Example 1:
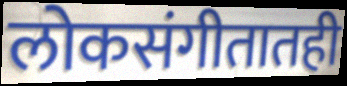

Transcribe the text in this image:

लोकसंगीतातही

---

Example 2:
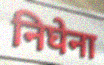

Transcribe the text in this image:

निघेना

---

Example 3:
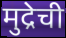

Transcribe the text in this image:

मुद्रेची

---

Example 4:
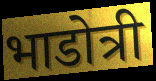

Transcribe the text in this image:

भाडोत्री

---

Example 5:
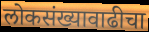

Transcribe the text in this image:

लोकसंख्यावाढीचा